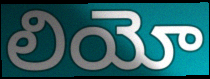
లియో